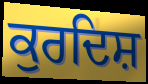
ਕੁਰਦਿਸ਼